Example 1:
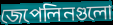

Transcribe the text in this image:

জেপেলিনগুলো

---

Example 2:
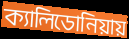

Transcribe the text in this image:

ক্যালিডোনিয়ায়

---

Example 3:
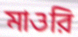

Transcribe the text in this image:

মাওরি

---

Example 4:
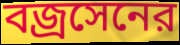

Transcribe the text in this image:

বজ্রসেনের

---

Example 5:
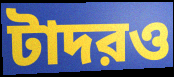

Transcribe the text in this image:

টাদরও